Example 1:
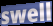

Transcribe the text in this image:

swell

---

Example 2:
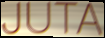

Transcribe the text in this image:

JUTA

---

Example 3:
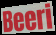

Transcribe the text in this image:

Beeri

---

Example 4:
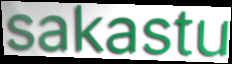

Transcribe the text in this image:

sakastu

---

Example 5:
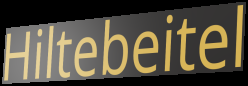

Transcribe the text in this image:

Hiltebeitel